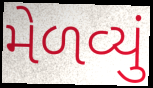
મેળવ્યું